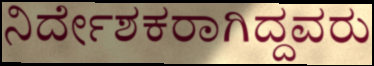
ನಿರ್ದೇಶಕರಾಗಿದ್ದವರು